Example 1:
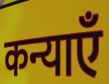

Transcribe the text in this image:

कन्याएँ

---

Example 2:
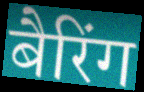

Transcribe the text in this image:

बैरिंग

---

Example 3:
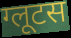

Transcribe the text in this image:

ग्लूटस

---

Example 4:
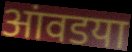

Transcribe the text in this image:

आंवडया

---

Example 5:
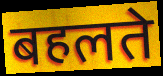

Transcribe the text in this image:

बहलते